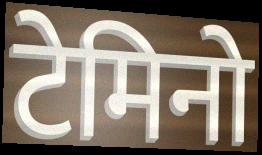
टेमिनो